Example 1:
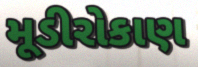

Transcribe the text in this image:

મૂડીરોકાણ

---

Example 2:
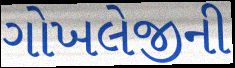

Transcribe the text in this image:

ગોખલેજીની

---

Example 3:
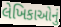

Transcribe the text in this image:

લેખિકાઓનું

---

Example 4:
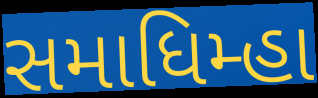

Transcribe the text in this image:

સમાધિમ્હા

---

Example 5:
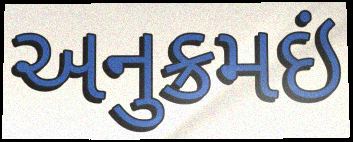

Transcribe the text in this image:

અનુક્રમઇં